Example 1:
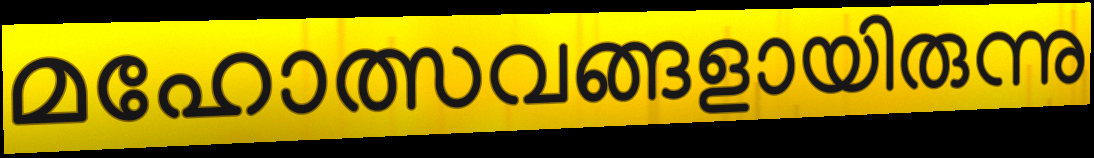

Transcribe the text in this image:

മഹോത്സവങ്ങളായിരുന്നു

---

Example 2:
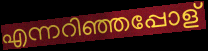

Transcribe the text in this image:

എന്നറിഞ്ഞപ്പോള്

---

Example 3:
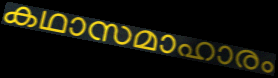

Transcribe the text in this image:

കഥാസമാഹാരം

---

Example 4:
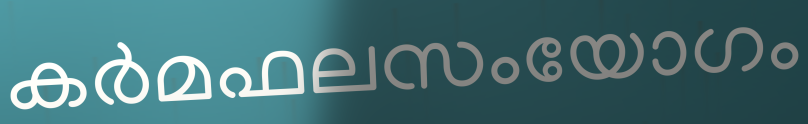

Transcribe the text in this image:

കർമഫലസംയോഗം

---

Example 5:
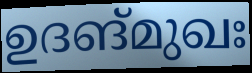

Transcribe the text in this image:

ഉദങ്മുഖഃ